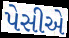
પેસીએ